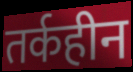
तर्कहीन